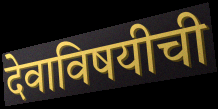
देवाविषयीची